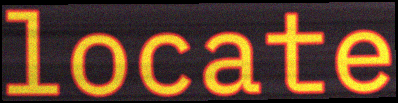
locate